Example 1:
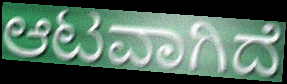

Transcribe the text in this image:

ಆಟವಾಗಿದೆ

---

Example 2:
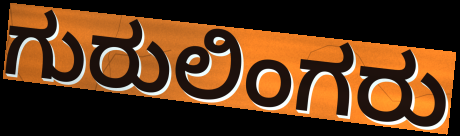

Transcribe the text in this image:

ಗುರುಲಿಂಗರು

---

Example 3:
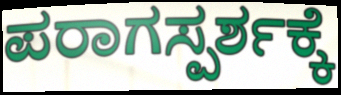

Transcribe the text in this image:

ಪರಾಗಸ್ಪರ್ಶಕ್ಕೆ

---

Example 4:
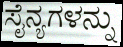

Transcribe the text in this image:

ಸೈನ್ಯಗಳನ್ನು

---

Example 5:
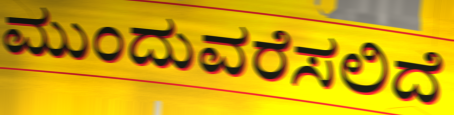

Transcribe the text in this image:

ಮುಂದುವರೆಸಲಿದೆ